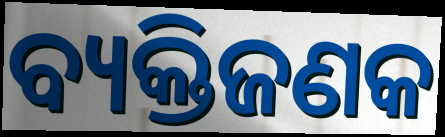
ବ୍ୟକ୍ତିଜଣକ